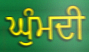
ਘੁੰਮਦੀ